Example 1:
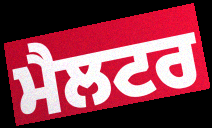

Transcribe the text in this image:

ਮੈਲਟਰ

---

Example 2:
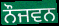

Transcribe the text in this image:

ਨੌਜਵਨ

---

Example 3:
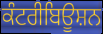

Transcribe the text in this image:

ਕੰਟਰੀਬਿਊਸ਼ਨ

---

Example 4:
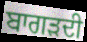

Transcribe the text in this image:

ਬਾਗੜਦੀ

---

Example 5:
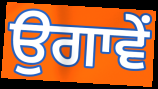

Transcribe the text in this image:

ਉਗਾਵੇਂ